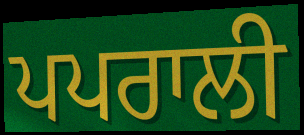
ਪਪਰਾਲੀ